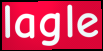
lagle